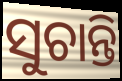
ସୁଚାନ୍ତି